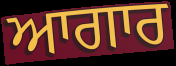
ਆਗਾਰ